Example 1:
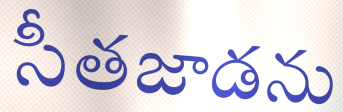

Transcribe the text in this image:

సీతజాడను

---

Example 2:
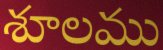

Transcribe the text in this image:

శూలము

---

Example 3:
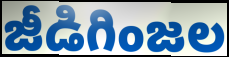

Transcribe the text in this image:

జీడిగింజల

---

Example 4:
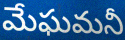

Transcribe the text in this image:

మేఘమనీ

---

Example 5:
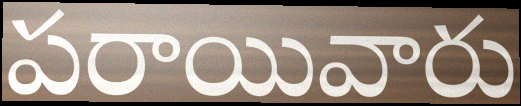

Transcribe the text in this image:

పరాయివారు